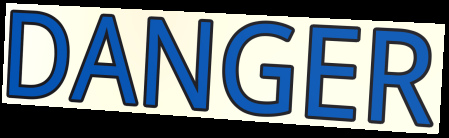
DANGER